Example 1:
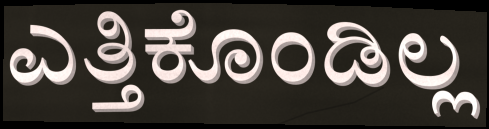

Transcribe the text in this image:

ಎತ್ತಿಕೊಂಡಿಲ್ಲ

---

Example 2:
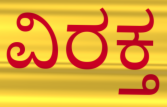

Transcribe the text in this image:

ವಿರಕ್ತ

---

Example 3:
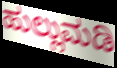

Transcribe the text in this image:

ಹುಲ್ಲುಮಡಿ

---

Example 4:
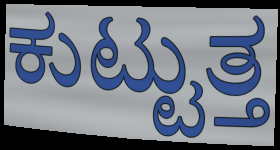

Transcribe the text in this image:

ಕುಟ್ಟುತ್ತ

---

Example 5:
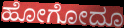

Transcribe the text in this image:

ಹೋಗೋದೂ